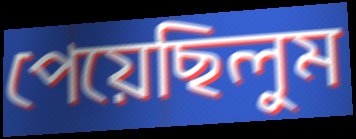
পেয়েছিলুম